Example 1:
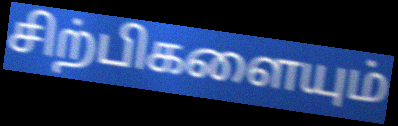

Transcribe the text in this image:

சிற்பிகளையும்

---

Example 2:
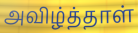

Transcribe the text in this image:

அவிழ்த்தாள்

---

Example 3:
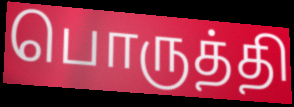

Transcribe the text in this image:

பொருத்தி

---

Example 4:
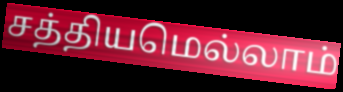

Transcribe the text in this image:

சத்தியமெல்லாம்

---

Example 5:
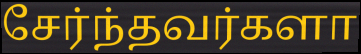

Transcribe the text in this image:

சேர்ந்தவர்களா